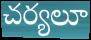
చర్యలూ